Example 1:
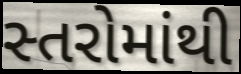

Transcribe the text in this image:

સ્તરોમાંથી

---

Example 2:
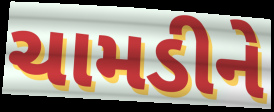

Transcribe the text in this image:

ચામડીને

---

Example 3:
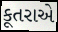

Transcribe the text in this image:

કૂતરાએ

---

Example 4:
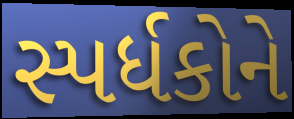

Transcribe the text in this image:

સ્પર્ધકોને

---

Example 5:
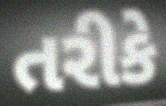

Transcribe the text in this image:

તરીકે